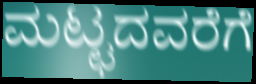
ಮಟ್ಟದವರೆಗೆ